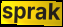
sprak